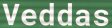
Veddas